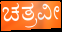
ಚತ್ರವೀ